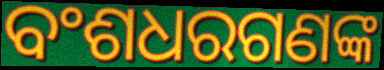
ବଂଶଧରଗଣଙ୍କ